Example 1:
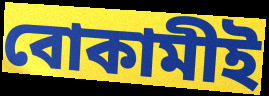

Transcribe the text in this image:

বোকামীই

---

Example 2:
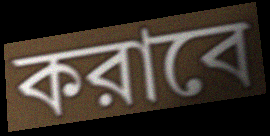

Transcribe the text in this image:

করাবে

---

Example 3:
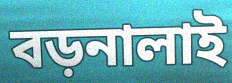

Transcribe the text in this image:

বড়নালাই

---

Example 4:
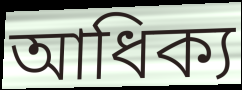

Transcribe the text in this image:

আধিক্য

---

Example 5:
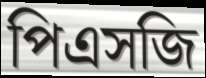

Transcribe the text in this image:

পিএসজি